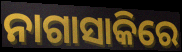
ନାଗାସାକିରେ